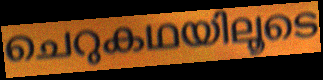
ചെറുകഥയിലൂടെ